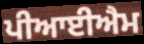
ਪੀਆਈਐਮ